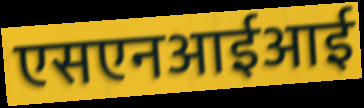
एसएनआईआई